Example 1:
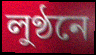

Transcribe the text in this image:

লুণ্ঠনে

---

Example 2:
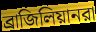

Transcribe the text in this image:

ব্রাজিলিয়ানরা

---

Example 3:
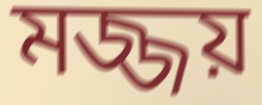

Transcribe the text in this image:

মজ্জয়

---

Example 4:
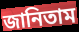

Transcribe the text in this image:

জানিতাম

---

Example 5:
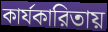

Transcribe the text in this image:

কার্যকারিতায়